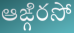
ఆఙ్గిరసో